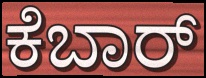
ಕೆಬಾರ್